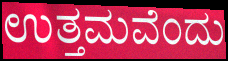
ಉತ್ತಮವೆಂದು